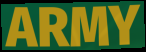
ARMY